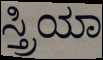
ಸ್ತ್ರಿಯಾ